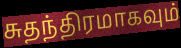
சுதந்திரமாகவும்